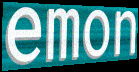
emon